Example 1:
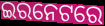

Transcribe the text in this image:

ଇରନେଟରେ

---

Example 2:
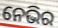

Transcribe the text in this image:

ନେଭିର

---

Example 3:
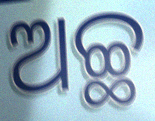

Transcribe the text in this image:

ଅଚ୍ଛ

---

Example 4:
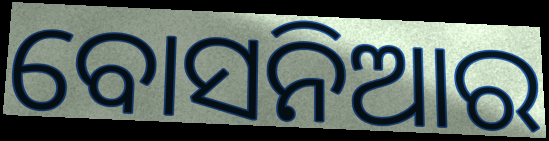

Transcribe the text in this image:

ବୋସନିଆର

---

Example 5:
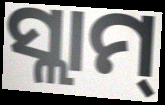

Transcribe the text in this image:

ସ୍ଲାମ୍